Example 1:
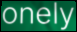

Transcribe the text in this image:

onely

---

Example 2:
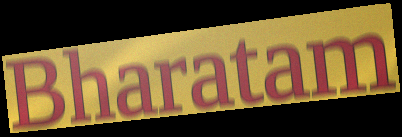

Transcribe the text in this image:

Bharatam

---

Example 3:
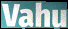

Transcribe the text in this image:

Vahu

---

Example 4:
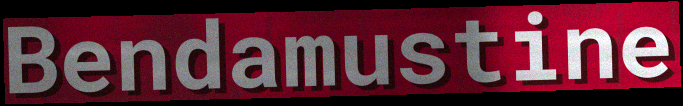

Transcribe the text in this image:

Bendamustine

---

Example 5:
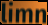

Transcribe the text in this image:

limn